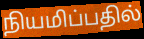
நியமிப்பதில்